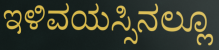
ಇಳಿವಯಸ್ಸಿನಲ್ಲೂ